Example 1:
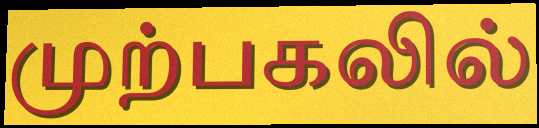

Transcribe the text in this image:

முற்பகலில்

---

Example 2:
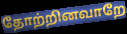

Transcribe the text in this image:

தோற்றினவாறே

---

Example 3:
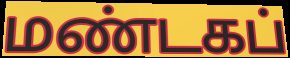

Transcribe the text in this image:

மண்டகப்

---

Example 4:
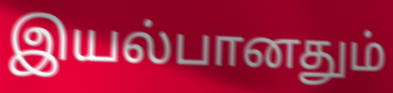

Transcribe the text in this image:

இயல்பானதும்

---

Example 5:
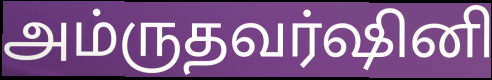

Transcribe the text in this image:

அம்ருதவர்ஷினி